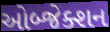
ઓબ્જેક્શન